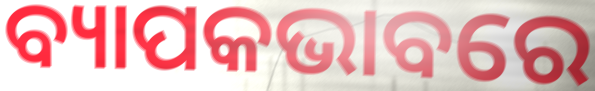
ବ୍ୟାପକଭାବରେ